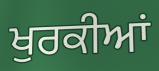
ਖੁਰਕੀਆਂ